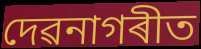
দেৱনাগৰীত